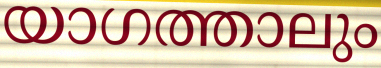
യാഗത്താലും